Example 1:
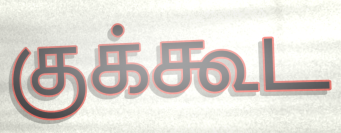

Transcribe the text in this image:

குக்கூட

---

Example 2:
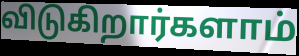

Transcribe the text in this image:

விடுகிறார்களாம்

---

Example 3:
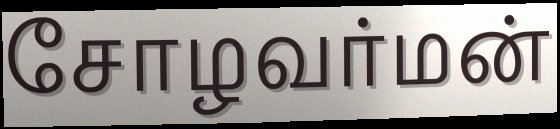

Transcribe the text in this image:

சோழவர்மன்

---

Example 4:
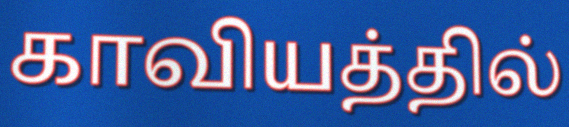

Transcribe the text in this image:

காவியத்தில்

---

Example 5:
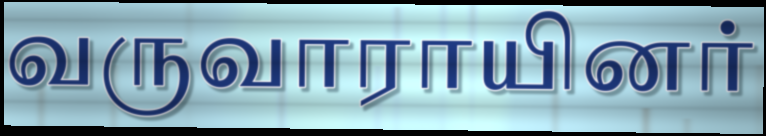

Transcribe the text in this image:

வருவாராயினர்